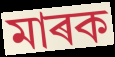
মাৰক